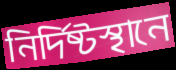
নির্দিষ্টস্থানে